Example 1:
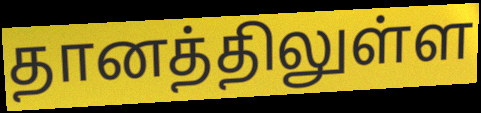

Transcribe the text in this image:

தானத்திலுள்ள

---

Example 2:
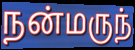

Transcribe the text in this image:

நன்மருந்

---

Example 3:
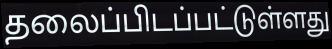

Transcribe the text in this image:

தலைப்பிடப்பட்டுள்ளது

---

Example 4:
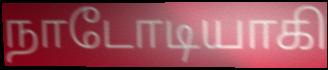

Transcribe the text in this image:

நாடோடியாகி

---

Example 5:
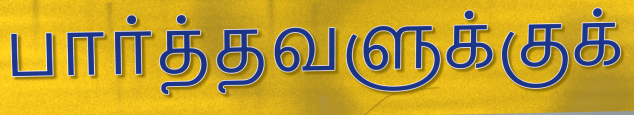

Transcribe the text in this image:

பார்த்தவளுக்குக்